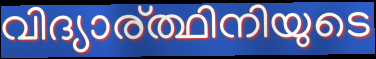
വിദ്യാര്ത്ഥിനിയുടെ